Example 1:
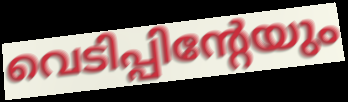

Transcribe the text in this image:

വെടിപ്പിന്റേയും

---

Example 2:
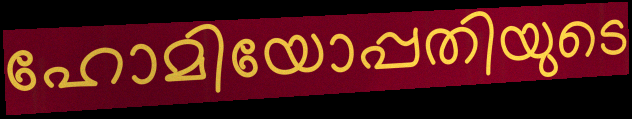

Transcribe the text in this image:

ഹോമിയോപ്പതിയുടെ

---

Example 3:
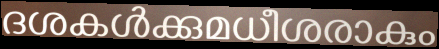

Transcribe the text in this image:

ദശകൾക്കുമധീശരാകും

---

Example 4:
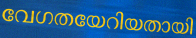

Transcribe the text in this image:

വേഗതയേറിയതായി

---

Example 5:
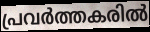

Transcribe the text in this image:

പ്രവർത്തകരിൽ